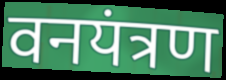
वनयंत्रण